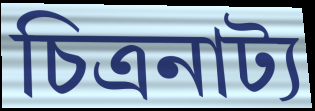
চিত্রনাট্য